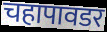
चहापावडर